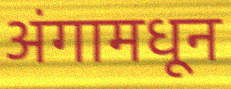
अंगामधून